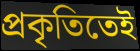
প্রকৃতিতেই